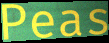
Peas